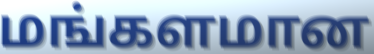
மங்களமான